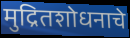
मुद्रितशोधनाचे